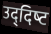
उद्‌दिष्‍ट